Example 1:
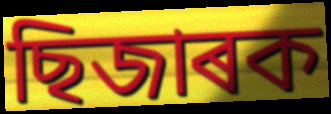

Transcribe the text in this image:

ছিজাৰক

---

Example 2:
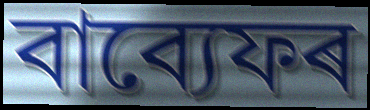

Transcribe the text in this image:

বাব্যেফৰ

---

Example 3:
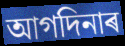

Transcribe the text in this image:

আগদিনাৰ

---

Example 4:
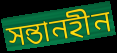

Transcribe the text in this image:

সন্তানহীন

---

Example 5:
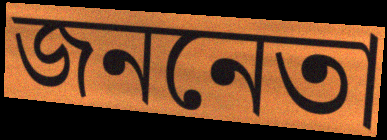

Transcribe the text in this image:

জননেতা